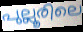
പുല്ലൂരിലെ